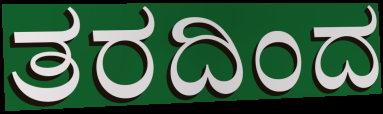
ತರದಿಂದ